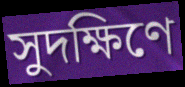
সুদক্ষিণে